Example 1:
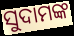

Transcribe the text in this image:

ସୁଦାମଙ୍କ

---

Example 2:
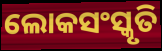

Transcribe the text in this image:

ଲୋକସଂସ୍କୃତି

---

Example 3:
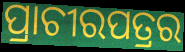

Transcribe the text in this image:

ପ୍ରାଚୀରପତ୍ରର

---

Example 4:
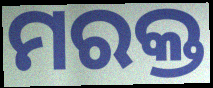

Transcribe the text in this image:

ମରକ୍ତ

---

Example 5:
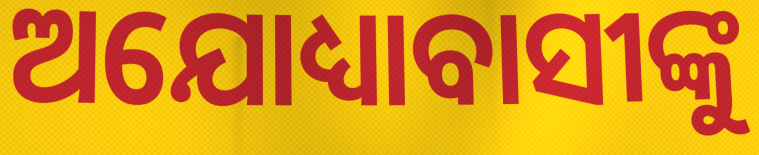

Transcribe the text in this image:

ଅଯୋଧ୍ୟାବାସୀଙ୍କୁ